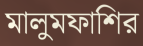
মালুমফাশির